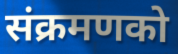
संक्रमणको